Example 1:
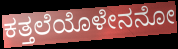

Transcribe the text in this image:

ಕತ್ತಲೆಯೊಳೇನನೋ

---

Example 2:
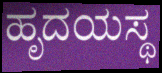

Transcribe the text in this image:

ಹೃದಯಸ್ಥ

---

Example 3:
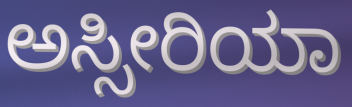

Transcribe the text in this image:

ಅಸ್ಸೀರಿಯಾ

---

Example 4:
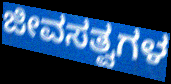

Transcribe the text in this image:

ಜೀವಸತ್ವಗಳ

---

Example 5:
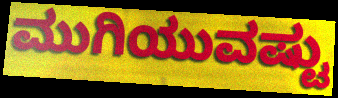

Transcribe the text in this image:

ಮುಗಿಯುವಷ್ಟು